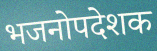
भजनोपदेशक